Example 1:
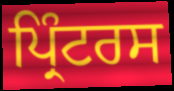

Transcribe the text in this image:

ਪ੍ਰਿੰਟਰਸ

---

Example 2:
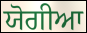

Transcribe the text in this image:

ਯੋਗੀਆ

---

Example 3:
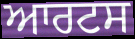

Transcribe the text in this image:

ਆਰਟਸ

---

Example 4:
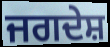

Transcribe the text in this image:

ਜਗਦੇਸ਼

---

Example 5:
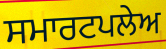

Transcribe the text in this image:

ਸਮਾਰਟਪਲੇਅ